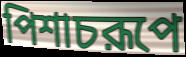
পিশাচরূপে